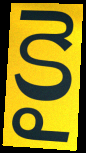
కై